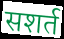
सशर्त